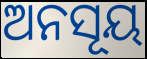
ଅନସୂୟ